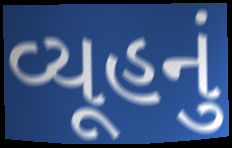
વ્યૂહનું